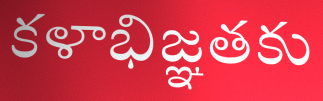
కళాభిజ్ఞతకు